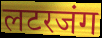
लटरजंग